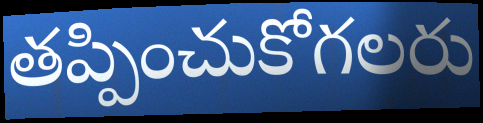
తప్పించుకోగలరు